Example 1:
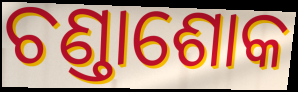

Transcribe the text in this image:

ଚଣ୍ଡାଶୋକ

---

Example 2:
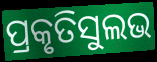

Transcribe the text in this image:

ପ୍ରକୃତିସୁଲଭ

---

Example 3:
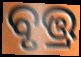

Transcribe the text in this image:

ବୃତ୍ତ୍ର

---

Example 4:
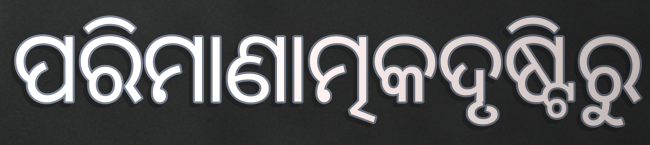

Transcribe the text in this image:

ପରିମାଣାତ୍ମକଦୃଷ୍ଟିରୁ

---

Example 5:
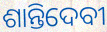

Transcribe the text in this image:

ଶାନ୍ତିଦେବୀ